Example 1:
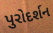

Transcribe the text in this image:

પુરોદર્શન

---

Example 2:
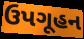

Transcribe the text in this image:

ઉપગૂહન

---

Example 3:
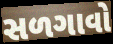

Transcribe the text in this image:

સળગાવો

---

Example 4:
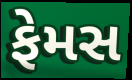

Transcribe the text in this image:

ફેમસ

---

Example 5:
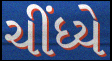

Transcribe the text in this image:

ચીંધ્યે